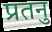
प्रतनु